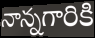
నాన్నగారికి